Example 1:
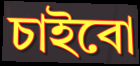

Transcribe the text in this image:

চাইবো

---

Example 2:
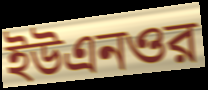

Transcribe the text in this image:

ইউএনওর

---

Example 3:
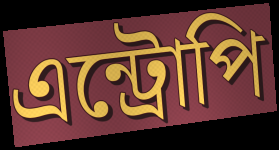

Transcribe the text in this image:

এন্ট্রোপি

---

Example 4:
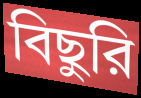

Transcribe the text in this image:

বিছুরি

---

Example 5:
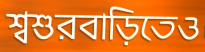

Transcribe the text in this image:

শ্বশুরবাড়িতেও